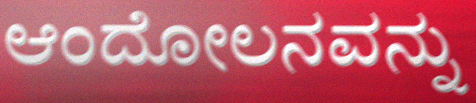
ಆಂದೋಲನವನ್ನು